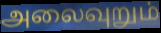
அலைவுறும்